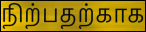
நிற்பதற்காக